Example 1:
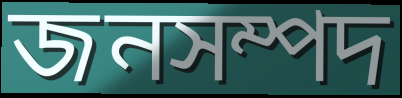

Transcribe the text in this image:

জনসম্পদ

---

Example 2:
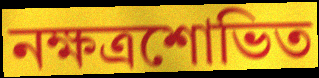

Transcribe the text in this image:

নক্ষত্রশোভিত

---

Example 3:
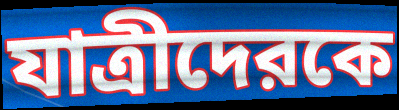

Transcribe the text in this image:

যাত্রীদেরকে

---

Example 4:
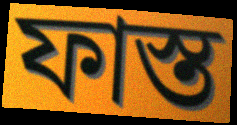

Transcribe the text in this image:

ফাস্ত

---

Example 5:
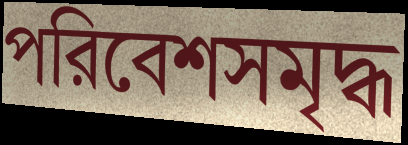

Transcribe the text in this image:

পরিবেশসমৃদ্ধ